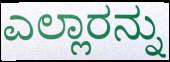
ಎಲ್ಲಾರನ್ನು